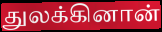
துலக்கினான்